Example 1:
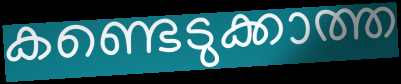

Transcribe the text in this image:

കണ്ടെടുക്കാത്ത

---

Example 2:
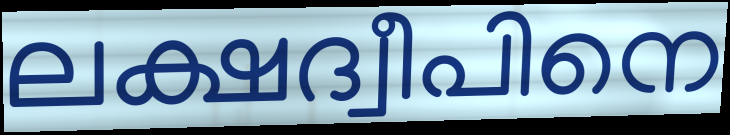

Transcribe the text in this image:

ലക്ഷദ്വീപിനെ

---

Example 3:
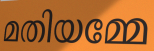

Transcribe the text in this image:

മതിയമ്മേ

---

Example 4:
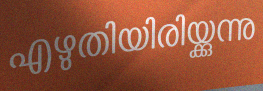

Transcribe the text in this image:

എഴുതിയിരിയ്ക്കുന്നു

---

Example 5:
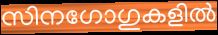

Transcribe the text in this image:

സിനഗോഗുകളിൽ